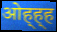
ओह्ह्ह